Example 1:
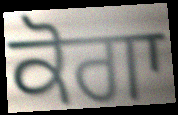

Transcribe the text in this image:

ਕੋਗਾ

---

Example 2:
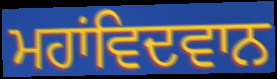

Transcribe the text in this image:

ਮਹਾਂਵਿਦਵਾਨ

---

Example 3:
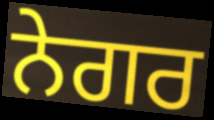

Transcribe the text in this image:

ਨੇਗਰ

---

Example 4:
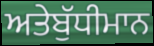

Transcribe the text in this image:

ਅਤੇਬੁੱਧੀਮਾਨ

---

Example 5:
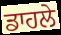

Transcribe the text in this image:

ਡਾਹਲੇ